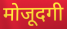
मोजूदगी